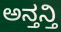
ಅನ್ತನ್ತಿ